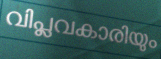
വിപ്ലവകാരിയും